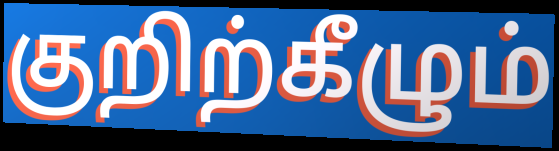
குறிற்கீழும்